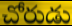
చోరుడు